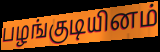
பழங்குடியினம்